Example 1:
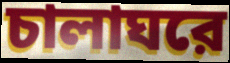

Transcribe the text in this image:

চালাঘরে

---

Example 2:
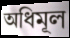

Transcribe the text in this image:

অধিমূল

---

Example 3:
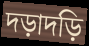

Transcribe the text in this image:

দড়াদড়ি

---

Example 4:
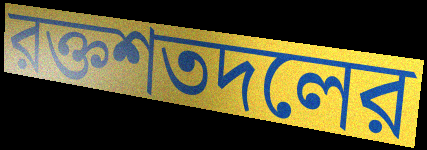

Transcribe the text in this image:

রক্তশতদলের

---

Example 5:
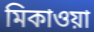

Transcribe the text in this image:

মিকাওয়া